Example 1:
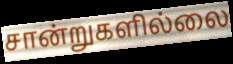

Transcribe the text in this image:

சான்றுகளில்லை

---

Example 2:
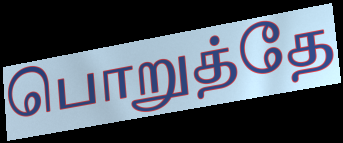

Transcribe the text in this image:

பொறுத்தே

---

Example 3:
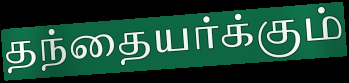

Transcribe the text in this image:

தந்தையர்க்கும்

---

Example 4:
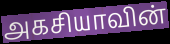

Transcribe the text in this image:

அகசியாவின்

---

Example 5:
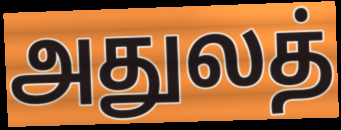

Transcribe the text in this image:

அதுலத்